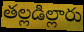
తల్లడిల్లారు